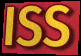
ISS